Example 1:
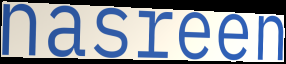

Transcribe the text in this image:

nasreen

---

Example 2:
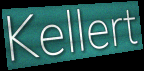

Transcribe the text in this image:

Kellert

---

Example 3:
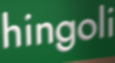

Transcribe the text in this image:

hingoli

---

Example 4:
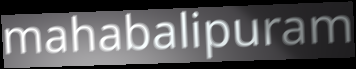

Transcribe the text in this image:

mahabalipuram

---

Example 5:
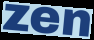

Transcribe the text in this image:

zen